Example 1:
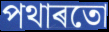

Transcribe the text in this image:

পথাৰতো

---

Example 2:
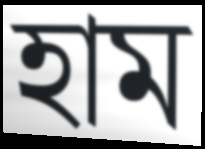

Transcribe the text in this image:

হাম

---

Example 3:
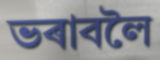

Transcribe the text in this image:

ভৰাবলৈ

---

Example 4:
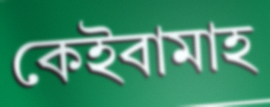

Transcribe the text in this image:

কেইবামাহ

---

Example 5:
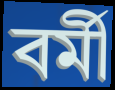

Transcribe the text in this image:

বৰ্মী